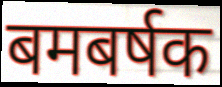
बमबर्षक